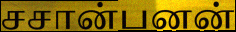
சசான்பனன்